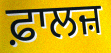
ਫ਼ਾਲਜ਼